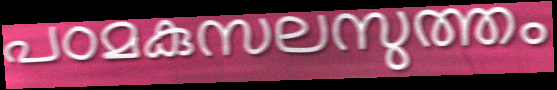
പഠമകുസലസുത്തം